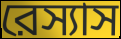
রেস্যাস